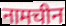
नामचीन